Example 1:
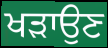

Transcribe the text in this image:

ਖੜਾਉਣ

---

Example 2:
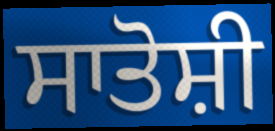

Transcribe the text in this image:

ਸਾਤੋਸ਼ੀ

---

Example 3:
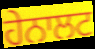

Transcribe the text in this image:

ਹੇਨਾਲਟ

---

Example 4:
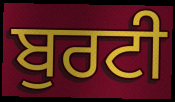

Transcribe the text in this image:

ਬੁਰਟੀ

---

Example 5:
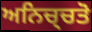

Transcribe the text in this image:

ਅਨਿਚ੍ਚਤੋ